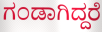
ಗಂಡಾಗಿದ್ದರೆ